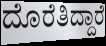
ದೊರೆತಿದ್ದಾರೆ